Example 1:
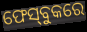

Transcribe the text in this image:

ଫେସ୍‌ବୁକରେ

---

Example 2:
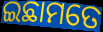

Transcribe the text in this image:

ଇଛାମତେ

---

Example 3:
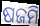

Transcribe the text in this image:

ଷଜମି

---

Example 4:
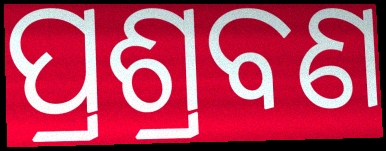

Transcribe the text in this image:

ପ୍ରଶ୍ରବଣ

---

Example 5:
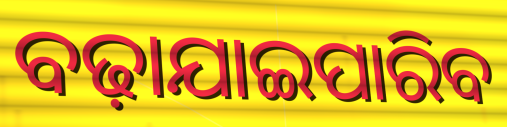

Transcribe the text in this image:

ବଢ଼ାଯାଇପାରିବ